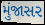
મુંજાસર